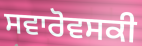
ਸਵਾਰੋਵਸਕੀ